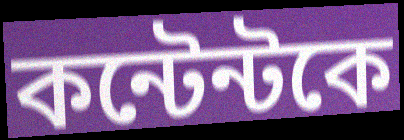
কন্টেন্টকে